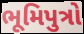
ભૂમિપુત્રો